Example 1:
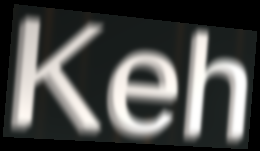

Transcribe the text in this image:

Keh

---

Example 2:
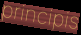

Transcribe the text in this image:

principis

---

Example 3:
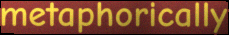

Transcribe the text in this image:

metaphorically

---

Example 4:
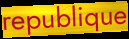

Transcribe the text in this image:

republique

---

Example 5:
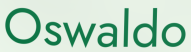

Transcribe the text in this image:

Oswaldo